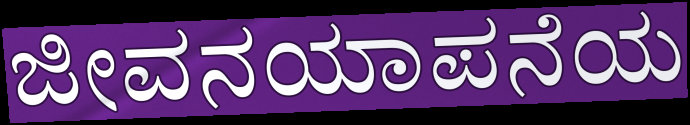
ಜೀವನಯಾಪನೆಯ